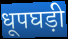
धूपघड़ी